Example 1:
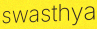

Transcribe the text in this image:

swasthya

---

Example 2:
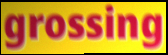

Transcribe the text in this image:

grossing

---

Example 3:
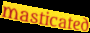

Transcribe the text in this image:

masticated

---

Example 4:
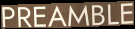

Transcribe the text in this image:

PREAMBLE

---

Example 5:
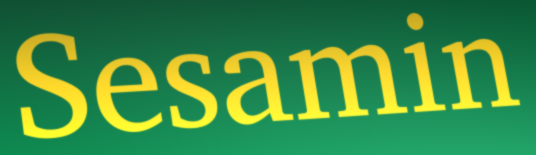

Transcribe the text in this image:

Sesamin